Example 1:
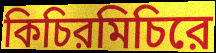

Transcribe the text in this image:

কিচিরমিচিরে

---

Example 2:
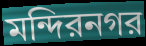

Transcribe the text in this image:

মন্দিরনগর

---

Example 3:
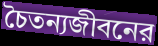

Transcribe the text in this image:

চৈতন্যজীবনের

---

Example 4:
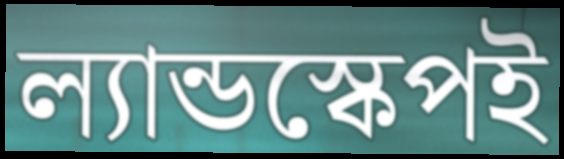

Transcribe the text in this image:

ল্যান্ডস্কেপই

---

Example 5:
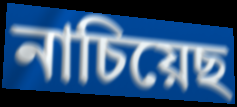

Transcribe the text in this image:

নাচিয়েছ